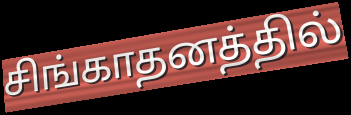
சிங்காதனத்தில்